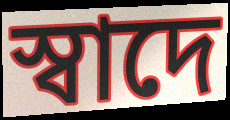
স্বাদে